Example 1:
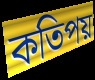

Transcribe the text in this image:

কতিপয়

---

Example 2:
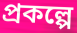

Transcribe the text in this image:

প্রকল্পে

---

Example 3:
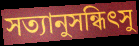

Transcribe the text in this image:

সত্যানুসন্ধিৎসু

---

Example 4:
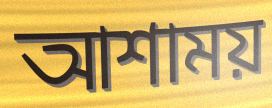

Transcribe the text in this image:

আশাময়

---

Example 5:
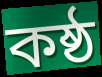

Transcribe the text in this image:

কষ্ঠ